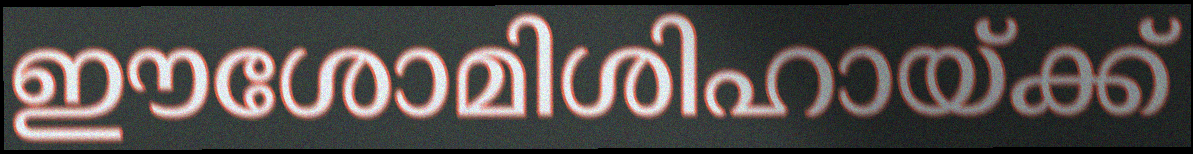
ഈശോമിശിഹായ്ക്ക്